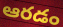
ఆరడం